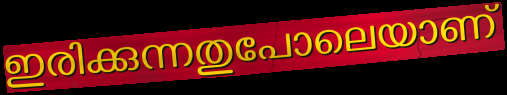
ഇരിക്കുന്നതുപോലെയാണ്